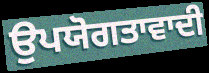
ਉਪਯੋਗਤਾਵਾਦੀ